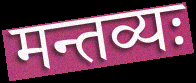
मन्तव्यः